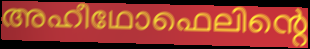
അഹീഥോഫെലിന്റെ